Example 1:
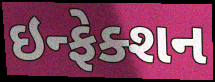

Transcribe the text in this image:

ઇન્ફેક્શન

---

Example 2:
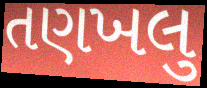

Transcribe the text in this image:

તણખલુ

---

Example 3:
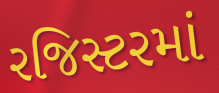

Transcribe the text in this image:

રજિસ્ટરમાં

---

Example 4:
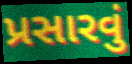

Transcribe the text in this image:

પ્રસારવું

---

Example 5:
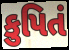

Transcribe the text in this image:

કુપિતં